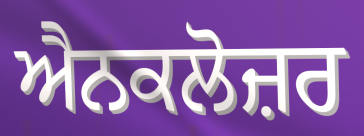
ਐਨਕਲੋਜ਼ਰ